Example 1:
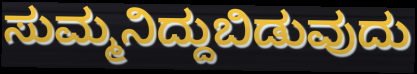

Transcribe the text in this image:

ಸುಮ್ಮನಿದ್ದುಬಿಡುವುದು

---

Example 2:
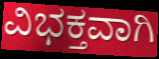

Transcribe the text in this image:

ವಿಭಕ್ತವಾಗಿ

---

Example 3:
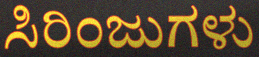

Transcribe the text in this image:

ಸಿರಿಂಜುಗಳು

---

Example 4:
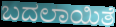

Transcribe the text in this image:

ಬದಲಾಯಿತೆ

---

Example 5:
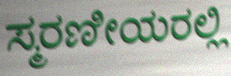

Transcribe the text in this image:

ಸ್ಮರಣೀಯರಲ್ಲಿ